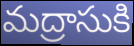
మద్రాసుకి